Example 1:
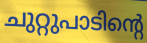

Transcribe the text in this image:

ചുറ്റുപാടിന്റെ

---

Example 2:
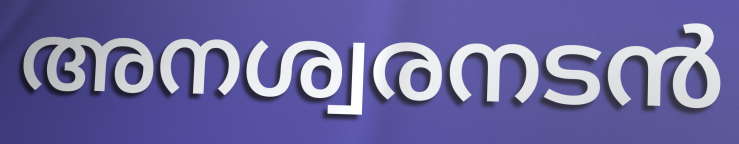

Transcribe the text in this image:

അനശ്വരനടൻ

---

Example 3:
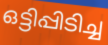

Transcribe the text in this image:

ഒട്ടിപ്പിടിച്ച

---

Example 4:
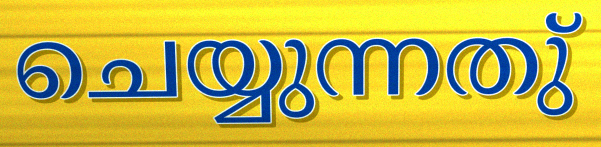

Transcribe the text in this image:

ചെയ്യുന്നതു്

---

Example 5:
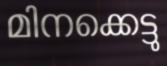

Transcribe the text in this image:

മിനക്കെട്ടു